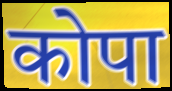
कोपा